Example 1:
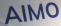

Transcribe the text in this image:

AIMO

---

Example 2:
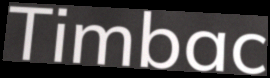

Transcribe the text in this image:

Timbac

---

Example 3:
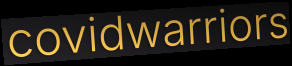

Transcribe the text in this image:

covidwarriors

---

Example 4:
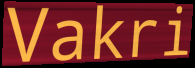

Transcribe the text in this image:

Vakri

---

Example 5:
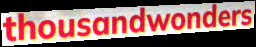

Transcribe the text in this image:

thousandwonders